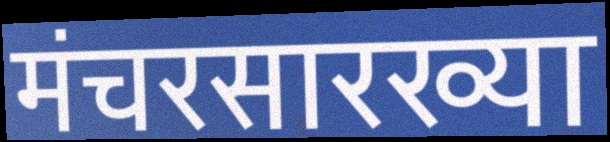
मंचरसारख्या